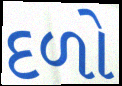
દળો